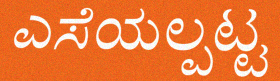
ಎಸೆಯಲ್ಪಟ್ಟ